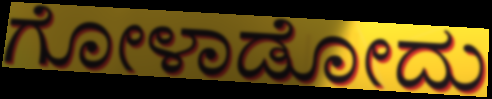
ಗೋಳಾಡೋದು